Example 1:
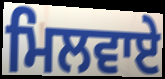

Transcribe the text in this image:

ਮਿਲਵਾਏ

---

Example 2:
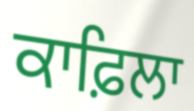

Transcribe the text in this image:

ਕਾਫ਼ਿਲਾ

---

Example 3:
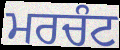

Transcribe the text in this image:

ਮਰਚੰਟ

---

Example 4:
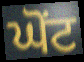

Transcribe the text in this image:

ਘੋਂਟ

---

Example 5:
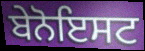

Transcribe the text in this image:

ਬੇਨੋਇਸਟ